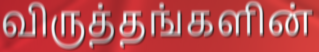
விருத்தங்களின்